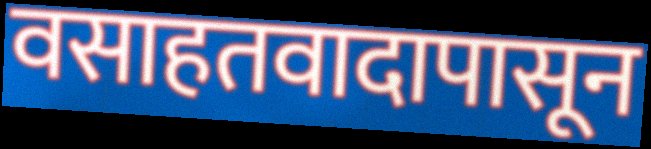
वसाहतवादापासून